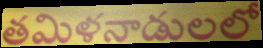
తమిళనాడులలో